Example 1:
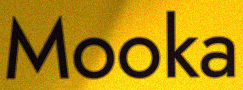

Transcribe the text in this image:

Mooka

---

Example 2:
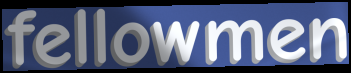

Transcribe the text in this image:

fellowmen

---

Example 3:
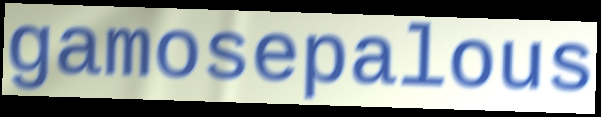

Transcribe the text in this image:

gamosepalous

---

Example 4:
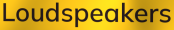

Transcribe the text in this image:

Loudspeakers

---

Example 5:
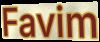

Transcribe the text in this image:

Favim